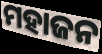
ମହାଜନ